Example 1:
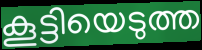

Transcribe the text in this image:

കൂട്ടിയെടുത്ത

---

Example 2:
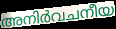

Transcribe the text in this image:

അനിർവചനീയ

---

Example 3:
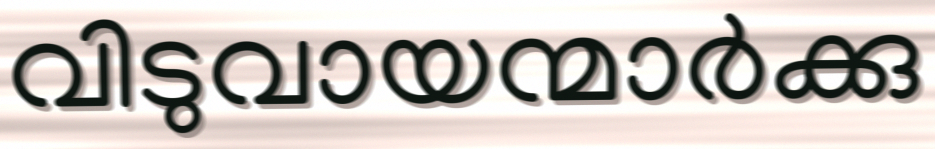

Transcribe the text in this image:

വിടുവായന്മാർക്കു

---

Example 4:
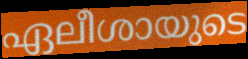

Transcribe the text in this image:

ഏലീശായുടെ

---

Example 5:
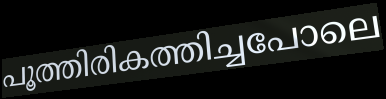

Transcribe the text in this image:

പൂത്തിരികത്തിച്ചപോലെ